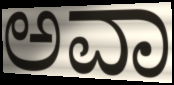
ಅವಾ